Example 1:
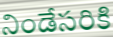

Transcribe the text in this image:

నిండేసరికి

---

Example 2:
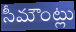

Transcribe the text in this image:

సీమౌంట్లు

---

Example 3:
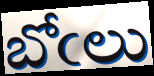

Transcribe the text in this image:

బోఁలు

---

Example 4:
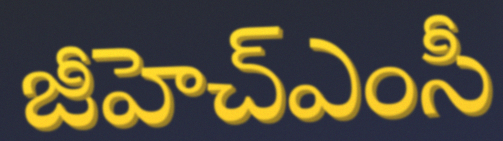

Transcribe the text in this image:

జీహెచ్ఎంసీ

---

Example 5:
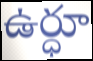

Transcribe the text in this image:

ఉర్ధూ